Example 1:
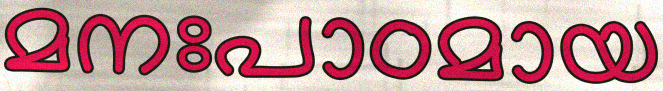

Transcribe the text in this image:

മനഃപാഠമായ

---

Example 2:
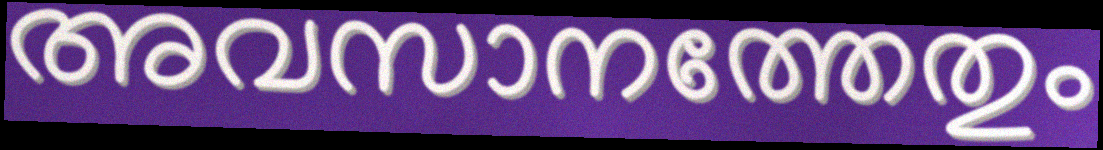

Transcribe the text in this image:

അവസാനത്തേതും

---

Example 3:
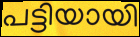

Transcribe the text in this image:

പട്ടിയായി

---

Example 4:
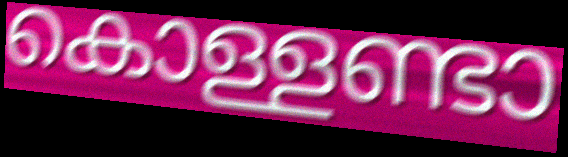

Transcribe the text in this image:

കൊള്ളണ്ടാ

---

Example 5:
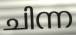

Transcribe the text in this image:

ചിന്ന